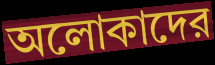
অলোকাদের